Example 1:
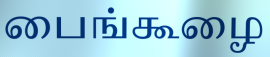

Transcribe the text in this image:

பைங்கூழை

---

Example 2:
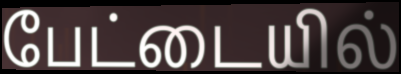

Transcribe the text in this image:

பேட்டையில்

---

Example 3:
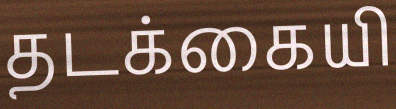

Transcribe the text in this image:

தடக்கையி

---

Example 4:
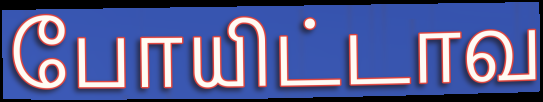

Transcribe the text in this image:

போயிட்டாவ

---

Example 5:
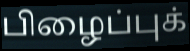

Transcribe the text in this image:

பிழைப்புக்